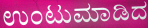
ಉಂಟುಮಾಡಿದ